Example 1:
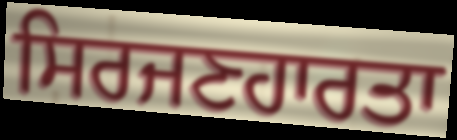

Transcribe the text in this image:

ਸਿਰਜਣਹਾਰਤਾ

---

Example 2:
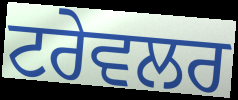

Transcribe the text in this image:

ਟਰੇਵਲਰ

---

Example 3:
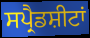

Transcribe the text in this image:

ਸਪ੍ਰੈਡਸ਼ੀਟਾਂ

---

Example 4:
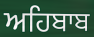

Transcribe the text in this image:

ਅਹਿਬਾਬ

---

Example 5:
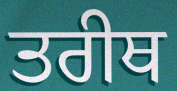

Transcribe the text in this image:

ਤਰੀਥ